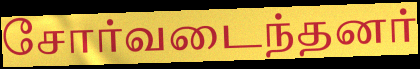
சோர்வடைந்தனர்